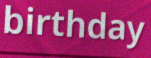
birthday